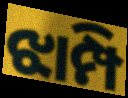
ଝାମ୍ପି